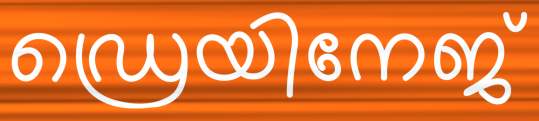
ഡ്രെയിനേജ്